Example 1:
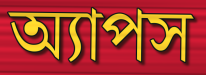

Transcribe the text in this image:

অ্যাপস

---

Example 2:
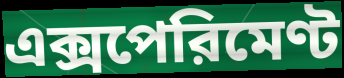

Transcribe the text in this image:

এক্সপেরিমেণ্ট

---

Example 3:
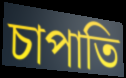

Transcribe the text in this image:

চাপাতি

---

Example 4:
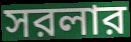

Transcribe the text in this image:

সরলার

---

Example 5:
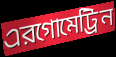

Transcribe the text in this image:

এরগোমেট্রিন